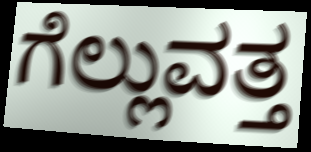
ಗೆಲ್ಲುವತ್ತ